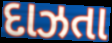
દાઝતા